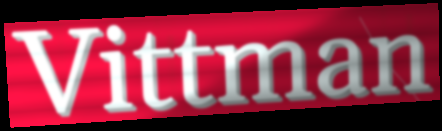
Vittman